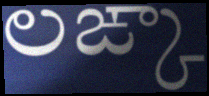
లఙ్కా